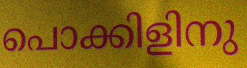
പൊക്കിളിനു